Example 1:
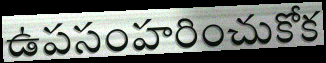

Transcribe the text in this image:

ఉపసంహరించుకోక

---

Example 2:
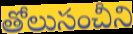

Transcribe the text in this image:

తోలుసంచీని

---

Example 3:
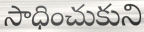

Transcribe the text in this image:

సాధించుకుని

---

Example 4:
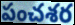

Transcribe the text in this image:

పంచశర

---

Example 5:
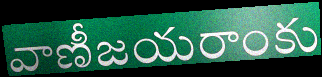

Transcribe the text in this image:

వాణీజయరాంకు